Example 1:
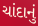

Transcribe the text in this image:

ચાંદાનું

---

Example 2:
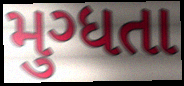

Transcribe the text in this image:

મુગ્ધતા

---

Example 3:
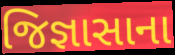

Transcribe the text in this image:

જિજ્ઞાસાના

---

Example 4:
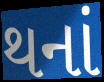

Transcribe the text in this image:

થનાં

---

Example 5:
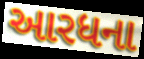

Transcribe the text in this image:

આરધના